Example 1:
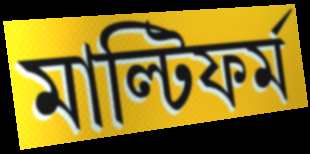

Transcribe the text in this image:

মাল্টিফর্ম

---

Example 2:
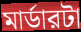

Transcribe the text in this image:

মার্ডারটা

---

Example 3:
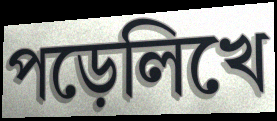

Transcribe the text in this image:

পড়েলিখে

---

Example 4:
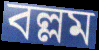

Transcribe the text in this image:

বল্লম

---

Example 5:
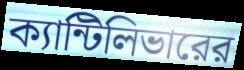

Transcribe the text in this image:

ক্যান্টিলিভারের